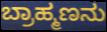
ಬ್ರಾಹ್ಮಣನು